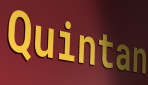
Quintan